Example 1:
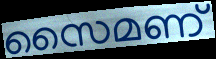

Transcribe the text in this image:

സൈമണ്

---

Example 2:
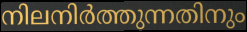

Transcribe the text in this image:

നിലനിർത്തുന്നതിനും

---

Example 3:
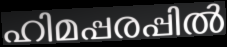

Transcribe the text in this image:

ഹിമപ്പരപ്പിൽ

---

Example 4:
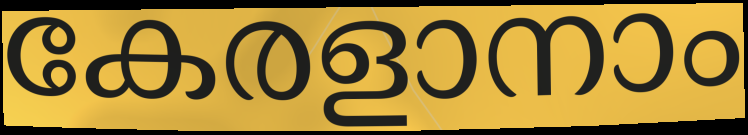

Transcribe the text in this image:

കേരളാനാം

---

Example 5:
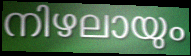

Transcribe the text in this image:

നിഴലായും